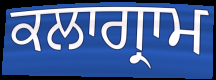
ਕਲਾਗ੍ਰਾਮ